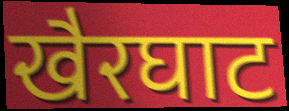
खैरघाट